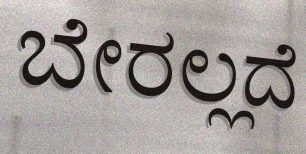
ಬೇರಲ್ಲದೆ